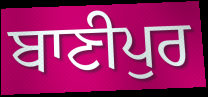
ਬਾਣੀਪੁਰ